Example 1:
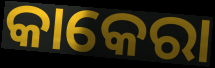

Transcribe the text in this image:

କାକେରା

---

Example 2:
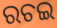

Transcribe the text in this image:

ରଚଇ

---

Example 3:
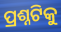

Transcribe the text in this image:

ପ୍ରଶ୍ନଟିକୁ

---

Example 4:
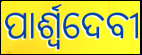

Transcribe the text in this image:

ପାର୍ଶ୍ୱଦେବୀ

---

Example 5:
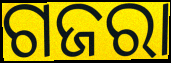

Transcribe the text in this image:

ଗଜରା